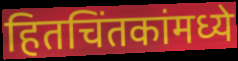
हितचिंतकांमध्ये